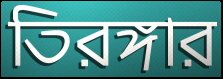
তিরঙ্গার